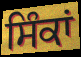
ਸਿੰਕਾਂ